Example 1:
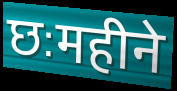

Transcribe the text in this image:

छःमहीने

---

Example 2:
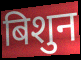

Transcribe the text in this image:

बिशुन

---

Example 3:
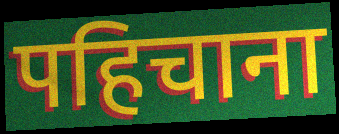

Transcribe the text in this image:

पहिचाना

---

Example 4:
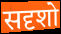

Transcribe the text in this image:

सदृशो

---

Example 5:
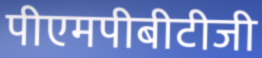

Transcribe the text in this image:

पीएमपीबीटीजी